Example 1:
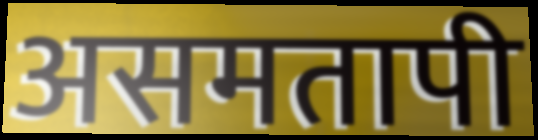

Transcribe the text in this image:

असमतापी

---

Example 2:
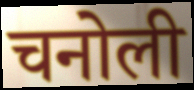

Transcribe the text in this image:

चनोली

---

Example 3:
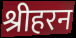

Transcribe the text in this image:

श्रीहरन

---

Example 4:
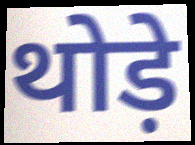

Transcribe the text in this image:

थोड़े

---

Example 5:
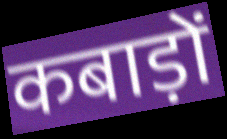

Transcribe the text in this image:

कबाड़ों